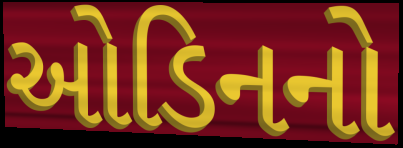
ઓડિનનો